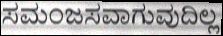
ಸಮಂಜಸವಾಗುವುದಿಲ್ಲ